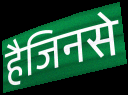
हैजिनसे